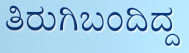
ತಿರುಗಿಬಂದಿದ್ದ